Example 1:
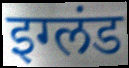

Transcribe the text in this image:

इग्लंड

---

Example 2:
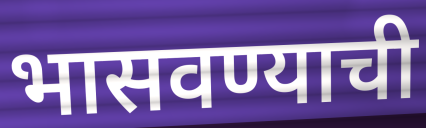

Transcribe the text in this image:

भासवण्याची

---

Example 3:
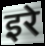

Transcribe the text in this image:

इरे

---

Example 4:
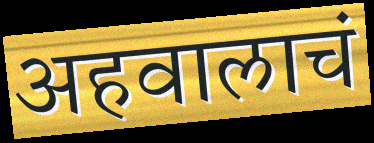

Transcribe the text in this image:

अहवालाचं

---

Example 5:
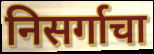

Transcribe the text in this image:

निसर्गाचा